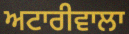
ਅਟਾਰੀਵਾਲਾ